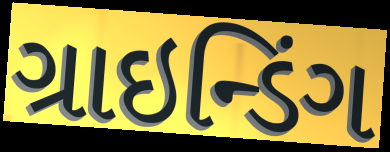
ગ્રાઇન્ડિંગ